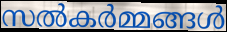
സൽകർമ്മങ്ങൾ